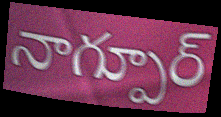
నాగ్పూర్